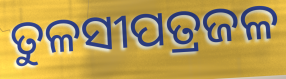
ତୁଳସୀପତ୍ରଜଳ